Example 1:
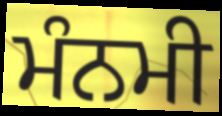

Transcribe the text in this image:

ਮੰਨਮੀ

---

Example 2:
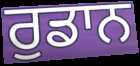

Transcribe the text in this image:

ਰੁਡਾਨ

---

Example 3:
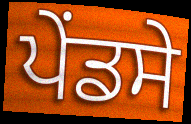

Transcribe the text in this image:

ਪੇਂਡਸੇ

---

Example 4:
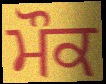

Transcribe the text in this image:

ਮੌਕ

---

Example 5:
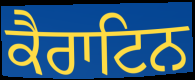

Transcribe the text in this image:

ਕੈਰਾਟਿਨ